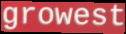
growest